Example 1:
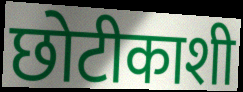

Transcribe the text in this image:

छोटीकाशी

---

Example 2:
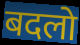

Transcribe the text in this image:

बदलो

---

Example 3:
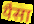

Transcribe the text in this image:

यैसा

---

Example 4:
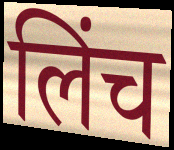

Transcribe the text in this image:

लिंच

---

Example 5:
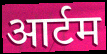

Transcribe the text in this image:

आर्टम